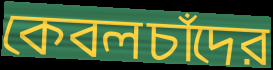
কেবলচাঁদের